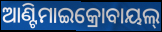
ଆଣ୍ଟିମାଇକ୍ରୋବାୟଲ୍